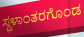
ಸ್ಥಳಾಂತರಗೊಂಡ